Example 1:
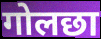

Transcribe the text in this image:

गोलछा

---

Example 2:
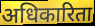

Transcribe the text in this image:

अधिकारिता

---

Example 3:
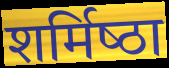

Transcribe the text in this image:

शर्मिष्‍ठा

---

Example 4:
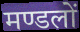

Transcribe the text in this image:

मण्‍डलों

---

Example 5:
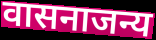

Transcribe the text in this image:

वासनाजन्य